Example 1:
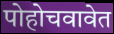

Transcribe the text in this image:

पोहोचवावेत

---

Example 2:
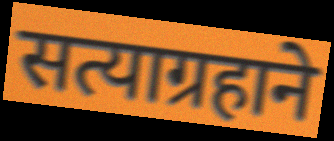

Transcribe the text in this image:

सत्याग्रहाने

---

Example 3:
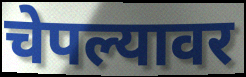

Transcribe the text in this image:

चेपल्यावर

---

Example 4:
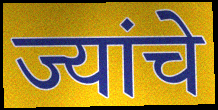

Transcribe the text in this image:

ज्यांचे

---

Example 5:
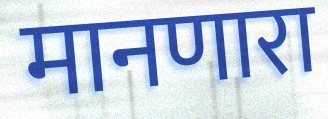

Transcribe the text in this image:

मानणारा